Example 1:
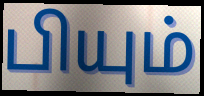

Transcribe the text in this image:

பியும்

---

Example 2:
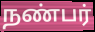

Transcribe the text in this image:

நண்பர்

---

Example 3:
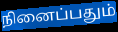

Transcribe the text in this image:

நினைப்பதும்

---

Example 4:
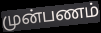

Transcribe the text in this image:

முன்பணம்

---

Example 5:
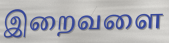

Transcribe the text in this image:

இறைவளை